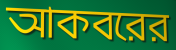
আকবরের